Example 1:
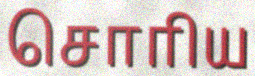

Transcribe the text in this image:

சொரிய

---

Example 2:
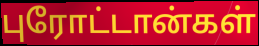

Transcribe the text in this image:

புரோட்டான்கள்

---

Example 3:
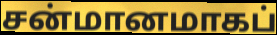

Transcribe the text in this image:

சன்மானமாகப்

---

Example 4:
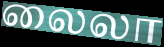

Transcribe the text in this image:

லைலா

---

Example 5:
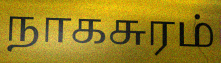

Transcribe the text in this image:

நாகசுரம்